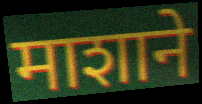
माशाने